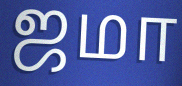
ஜமா